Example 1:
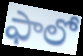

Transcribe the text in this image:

ఫాలో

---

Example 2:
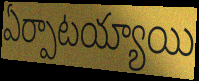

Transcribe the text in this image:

ఏర్పాటయ్యాయి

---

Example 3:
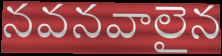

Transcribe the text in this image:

నవనవాలైన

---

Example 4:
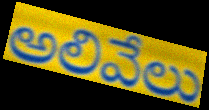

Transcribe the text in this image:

అలివేలు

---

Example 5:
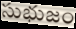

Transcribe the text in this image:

సుభుజం